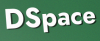
DSpace